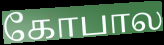
கோபால